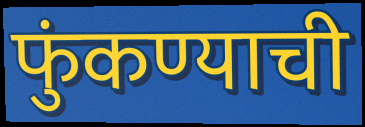
फुंकण्याची